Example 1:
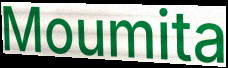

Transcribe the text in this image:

Moumita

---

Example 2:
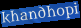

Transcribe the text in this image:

khandhopi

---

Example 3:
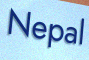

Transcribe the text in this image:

Nepal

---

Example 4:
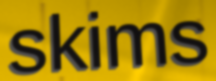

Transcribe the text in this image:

skims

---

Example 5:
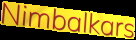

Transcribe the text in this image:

Nimbalkars